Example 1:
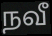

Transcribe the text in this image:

நவீ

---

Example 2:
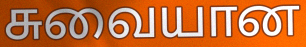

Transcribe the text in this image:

சுவையான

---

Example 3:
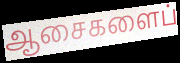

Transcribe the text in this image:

ஆசைகளைப்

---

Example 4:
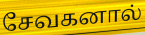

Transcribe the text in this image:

சேவகனால்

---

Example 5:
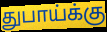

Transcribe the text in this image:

துபாய்க்கு